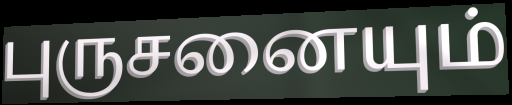
புருசனையும்